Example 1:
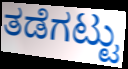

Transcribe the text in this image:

ತಡೆಗಟ್ಟು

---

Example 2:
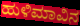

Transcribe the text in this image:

ಹುಳಿಮಾವಿನ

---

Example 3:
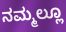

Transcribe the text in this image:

ನಮ್ಮಲ್ಲೂ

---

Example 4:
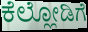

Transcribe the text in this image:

ಕೆಲ್ಲೋಡಿಗೆ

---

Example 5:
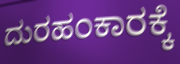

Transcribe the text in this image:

ದುರಹಂಕಾರಕ್ಕೆ